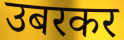
उबरकर